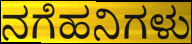
ನಗೆಹನಿಗಳು